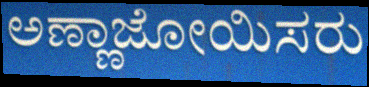
ಅಣ್ಣಾಜೋಯಿಸರು